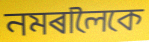
নমৰালৈকে